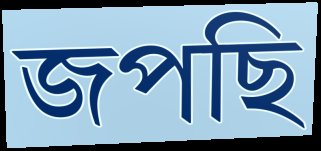
জপছি